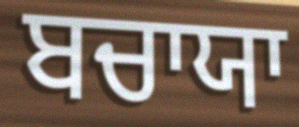
ਬਚਾਯਾ